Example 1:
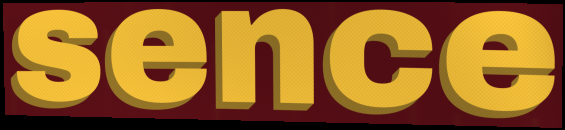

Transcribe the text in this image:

sence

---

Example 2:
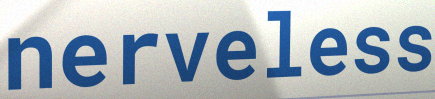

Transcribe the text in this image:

nerveless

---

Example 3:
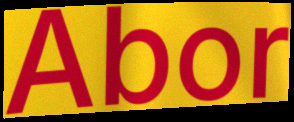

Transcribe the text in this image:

Abor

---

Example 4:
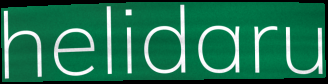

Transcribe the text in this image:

helidaru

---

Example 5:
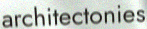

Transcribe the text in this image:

architectonies